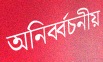
অনির্ব্বচনীয়